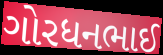
ગોરધનભાઈ